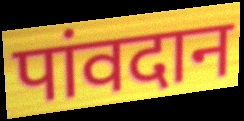
पांवदान